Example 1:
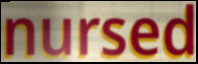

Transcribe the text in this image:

nursed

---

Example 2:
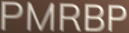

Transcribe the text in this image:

PMRBP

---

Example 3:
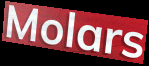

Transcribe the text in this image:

Molars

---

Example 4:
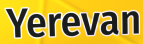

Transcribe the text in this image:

Yerevan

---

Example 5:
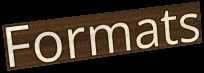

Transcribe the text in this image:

Formats